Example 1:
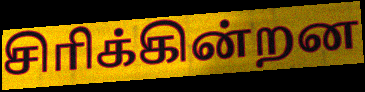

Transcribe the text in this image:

சிரிக்கின்றன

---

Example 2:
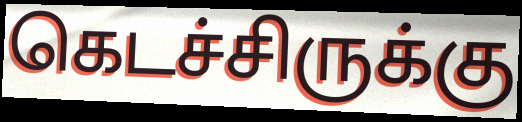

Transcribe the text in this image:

கெடச்சிருக்கு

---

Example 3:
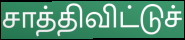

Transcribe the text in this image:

சாத்திவிட்டுச்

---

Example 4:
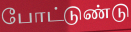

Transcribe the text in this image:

போட்டுண்டு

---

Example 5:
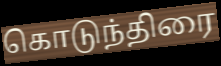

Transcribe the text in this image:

கொடுந்திரை